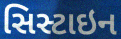
સિસ્ટાઇન